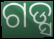
ଗଡ୍ସ